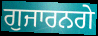
ਗੁਜਾਰਨਗੇ